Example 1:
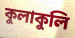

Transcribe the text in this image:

কুলাকুলি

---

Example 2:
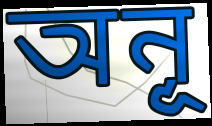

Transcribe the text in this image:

অনূ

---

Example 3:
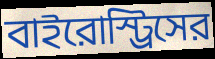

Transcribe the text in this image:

বাইরোস্ট্রিসের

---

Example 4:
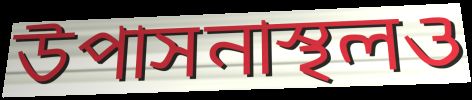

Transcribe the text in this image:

উপাসনাস্থলও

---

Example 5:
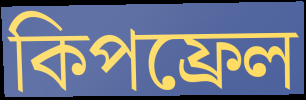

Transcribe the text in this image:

কিপফ্রেল